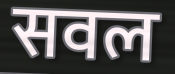
सवल